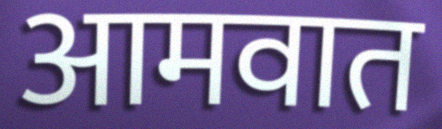
आमवात